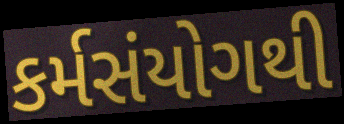
કર્મસંયોગથી